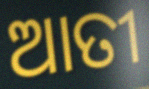
ଆତୀ